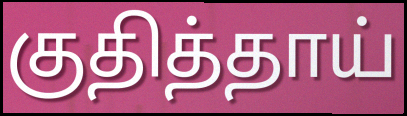
குதித்தாய்